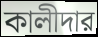
কালীদার